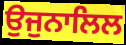
ਉਜੁਨਾਲਿਲ